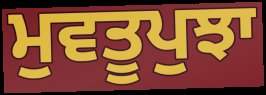
ਮੁਵਤੂਪੁਝਾ